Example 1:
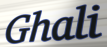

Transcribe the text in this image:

Ghali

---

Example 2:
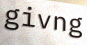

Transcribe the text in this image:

givng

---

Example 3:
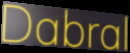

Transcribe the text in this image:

Dabral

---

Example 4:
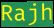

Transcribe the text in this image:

Rajh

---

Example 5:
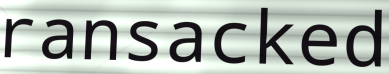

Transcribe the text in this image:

ransacked